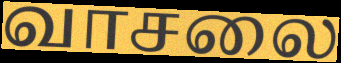
வாசலை